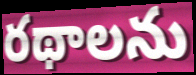
రథాలను